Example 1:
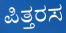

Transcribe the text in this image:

ಪಿತ್ತರಸ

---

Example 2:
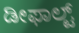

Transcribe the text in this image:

ಡೀಫಾಲ್ಟ್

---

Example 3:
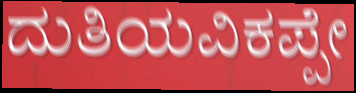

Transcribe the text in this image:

ದುತಿಯವಿಕಪ್ಪೇ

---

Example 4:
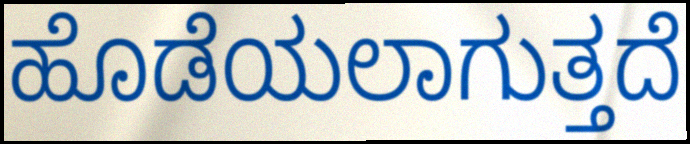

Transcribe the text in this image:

ಹೊಡೆಯಲಾಗುತ್ತದೆ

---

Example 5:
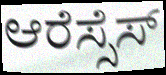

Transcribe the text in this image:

ಆರೆಸ್ಸೆಸ್